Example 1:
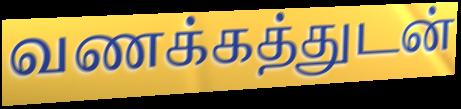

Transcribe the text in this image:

வணக்கத்துடன்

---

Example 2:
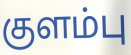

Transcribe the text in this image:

குளம்பு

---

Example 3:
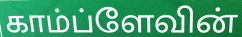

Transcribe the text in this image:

காம்ப்ளேவின்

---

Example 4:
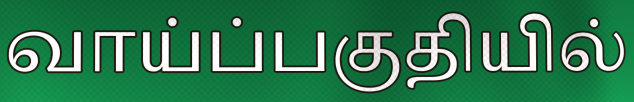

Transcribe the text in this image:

வாய்ப்பகுதியில்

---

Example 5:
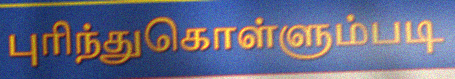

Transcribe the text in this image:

புரிந்துகொள்ளும்படி